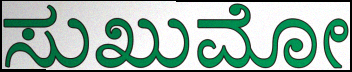
ಸುಖುಮೋ